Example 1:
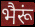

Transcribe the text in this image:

भैरूं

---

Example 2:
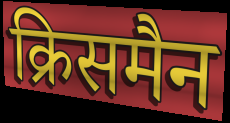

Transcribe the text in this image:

क्रिसमैन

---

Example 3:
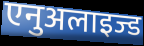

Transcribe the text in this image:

एनुअलाइज्ड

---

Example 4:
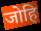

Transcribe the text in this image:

जोहि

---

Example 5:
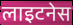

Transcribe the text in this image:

लाइटनेस